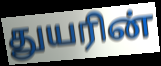
துயரின்